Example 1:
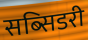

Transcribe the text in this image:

सब्सिडरी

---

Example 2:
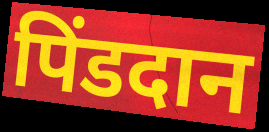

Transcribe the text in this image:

पिंडदान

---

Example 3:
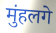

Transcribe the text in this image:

मुंहलगे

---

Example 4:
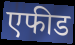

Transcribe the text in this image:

एफीड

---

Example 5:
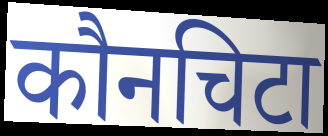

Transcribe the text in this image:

कौनचिटा